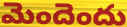
మెందెందు